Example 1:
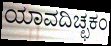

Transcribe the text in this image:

ಯಾವದಿಚ್ಛಕಂ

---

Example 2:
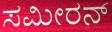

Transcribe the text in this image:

ಸಮೀರನ್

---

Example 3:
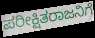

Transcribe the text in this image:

ಪರೀಕ್ಷಿತರಾಜನಿಗೆ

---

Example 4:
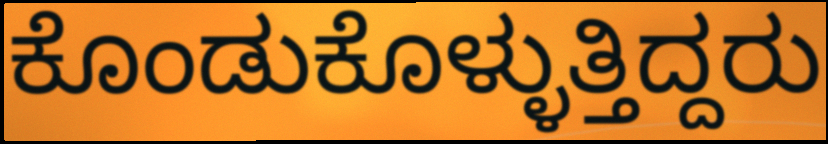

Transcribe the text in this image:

ಕೊಂಡುಕೊಳ್ಳುತ್ತಿದ್ದರು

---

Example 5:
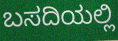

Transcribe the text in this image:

ಬಸದಿಯಲ್ಲಿ